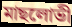
মাছলোভী